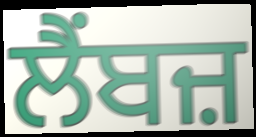
ਲੈਂਬਜ਼